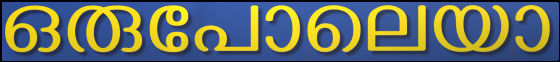
ഒരുപോലെയാ